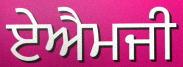
ਏਐਮਜੀ